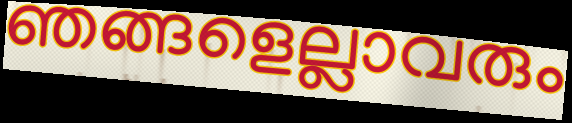
ഞങ്ങളെല്ലാവരും